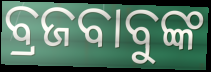
ବ୍ରଜବାବୁଙ୍କ